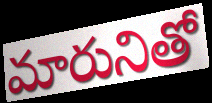
మారునితో